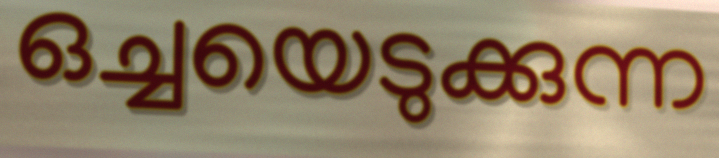
ഒച്ചയെടുക്കുന്ന